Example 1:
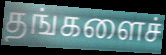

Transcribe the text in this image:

தங்களைச்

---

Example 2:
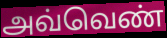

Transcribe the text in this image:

அவ்வெண்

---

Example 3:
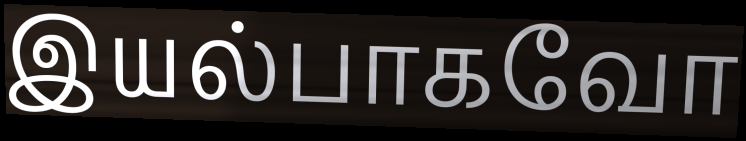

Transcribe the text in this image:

இயல்பாகவோ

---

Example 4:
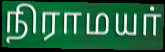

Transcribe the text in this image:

நிராமயர்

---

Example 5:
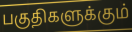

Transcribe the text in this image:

பகுதிகளுக்கும்